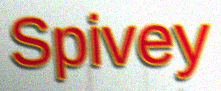
Spivey